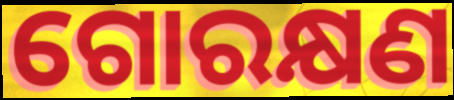
ଗୋରକ୍ଷଣ